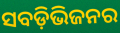
ସବଡ଼ିଭିଜନର